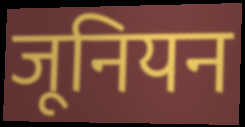
जूनियन